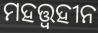
ମହତ୍ତ୍ବହୀନ